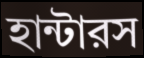
হান্টারস